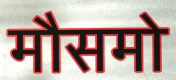
मौसमो